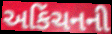
અકિંચનની